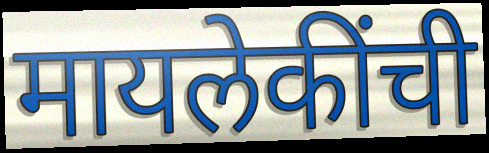
मायलेकींची